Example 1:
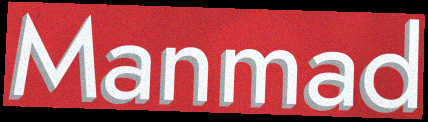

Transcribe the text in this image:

Manmad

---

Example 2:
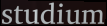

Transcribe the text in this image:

studium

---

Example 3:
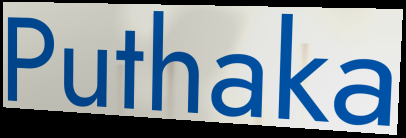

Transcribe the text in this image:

Puthaka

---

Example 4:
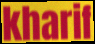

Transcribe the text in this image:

kharif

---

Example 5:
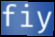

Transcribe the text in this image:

fiy